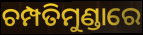
ଚମ୍ପତିମୁଣ୍ଡାରେ